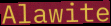
Alawite